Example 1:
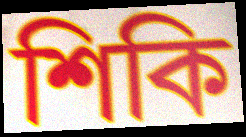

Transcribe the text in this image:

শিকি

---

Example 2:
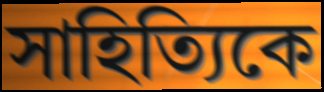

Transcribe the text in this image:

সাহিত্যিকে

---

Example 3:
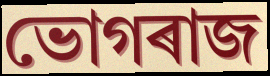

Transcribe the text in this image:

ভোগৰাজ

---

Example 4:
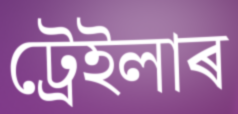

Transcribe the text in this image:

ট্ৰেইলাৰ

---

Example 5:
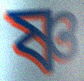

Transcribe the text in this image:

ষ্ণ